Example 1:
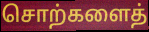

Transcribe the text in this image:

சொற்களைத்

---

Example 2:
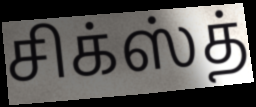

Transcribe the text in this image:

சிக்ஸ்த்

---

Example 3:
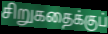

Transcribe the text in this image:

சிறுகதைக்குப்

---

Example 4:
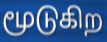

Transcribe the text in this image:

மூடுகிற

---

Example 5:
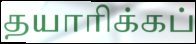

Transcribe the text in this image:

தயாரிக்கப்